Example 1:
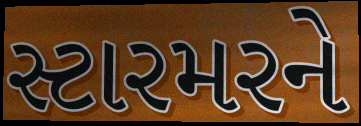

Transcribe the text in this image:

સ્ટારમરને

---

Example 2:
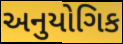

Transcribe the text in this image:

અનુયોગિક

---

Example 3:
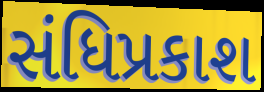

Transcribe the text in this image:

સંધિપ્રકાશ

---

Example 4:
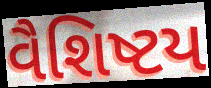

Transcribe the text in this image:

વૈશિષ્ટય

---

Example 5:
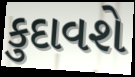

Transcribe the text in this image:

કુદાવશે